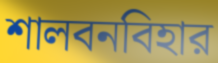
শালবনবিহার